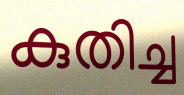
കുതിച്ച